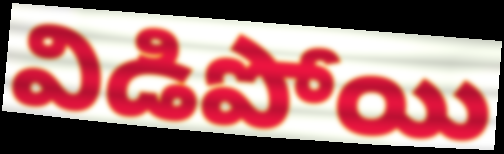
విడిపోయి